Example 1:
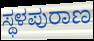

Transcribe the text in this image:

ಸ್ಥಳಪುರಾಣ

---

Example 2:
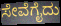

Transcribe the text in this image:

ಸೇವೆಗೈದು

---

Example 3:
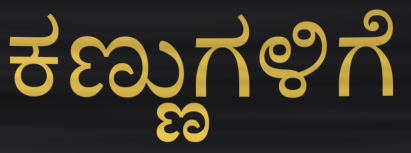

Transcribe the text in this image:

ಕಣ್ಣುಗಳಿಗೆ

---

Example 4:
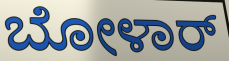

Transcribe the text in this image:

ಬೋಳಾರ್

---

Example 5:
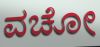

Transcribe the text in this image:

ವಚೋ